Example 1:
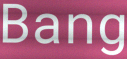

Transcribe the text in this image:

Bang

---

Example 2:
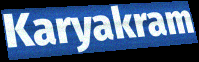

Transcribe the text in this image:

Karyakram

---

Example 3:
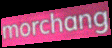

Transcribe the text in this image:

morchang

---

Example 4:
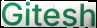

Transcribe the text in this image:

Gitesh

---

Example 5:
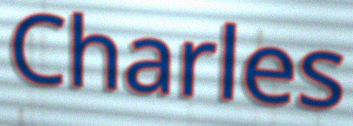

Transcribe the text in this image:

Charles